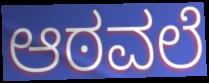
ಆಠವಲೆ